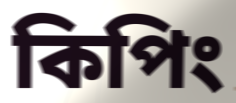
কিপিং